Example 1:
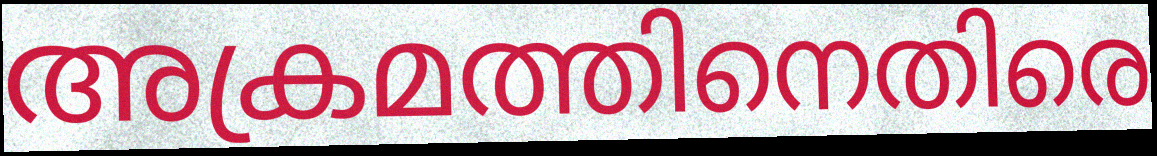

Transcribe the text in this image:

അക്രമത്തിനെതിരെ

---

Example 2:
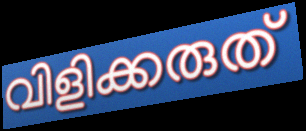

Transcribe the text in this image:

വിളിക്കരുത്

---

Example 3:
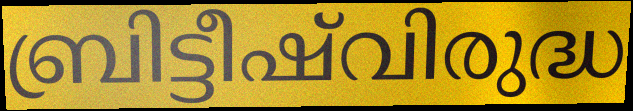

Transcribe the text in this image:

ബ്രിട്ടീഷ്‌വിരുദ്ധ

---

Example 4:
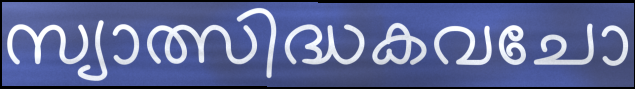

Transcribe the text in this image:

സ്യാത്സിദ്ധകവചോ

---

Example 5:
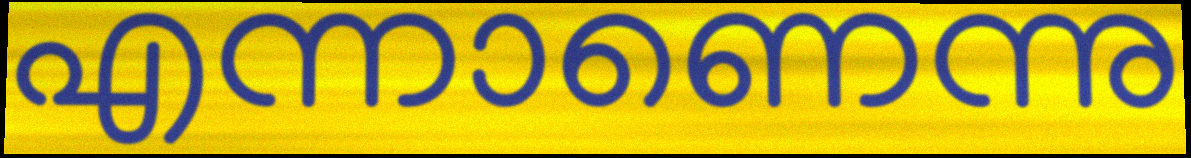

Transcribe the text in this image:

എന്നാണെന്നു